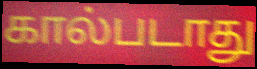
கால்படாது